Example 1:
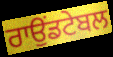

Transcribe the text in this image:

ਰਾਉਂਡਟੇਬਲ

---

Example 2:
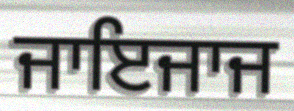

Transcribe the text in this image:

ਜਾਇਜਾਜ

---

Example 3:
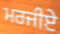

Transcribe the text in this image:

ਮਰਜੀਏ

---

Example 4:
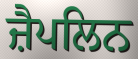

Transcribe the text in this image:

ਜ਼ੈਪਲਿਨ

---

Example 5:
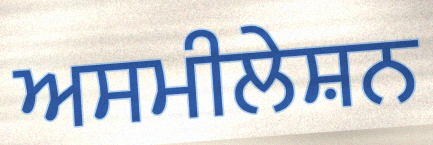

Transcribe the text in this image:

ਅਸਮੀਲੇਸ਼ਨ